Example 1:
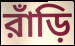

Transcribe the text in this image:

রাঁড়ি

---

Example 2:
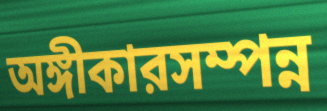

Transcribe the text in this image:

অঙ্গীকারসম্পন্ন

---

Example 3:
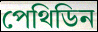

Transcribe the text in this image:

পেথিডিন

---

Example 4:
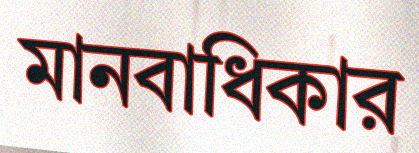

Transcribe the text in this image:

মানবাধিকার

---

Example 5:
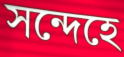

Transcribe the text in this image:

সন্দেহে